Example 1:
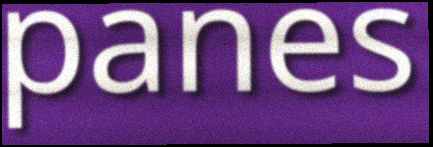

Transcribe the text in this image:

panes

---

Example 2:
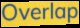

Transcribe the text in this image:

Overlap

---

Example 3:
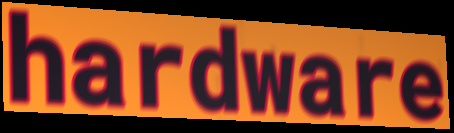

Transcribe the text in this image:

hardware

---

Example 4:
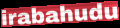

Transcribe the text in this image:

irabahudu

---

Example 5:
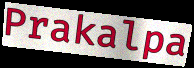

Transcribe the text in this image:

Prakalpa